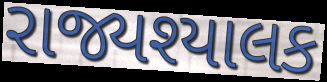
રાજ્યશ્યાલક